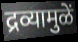
द्रव्यामुळें